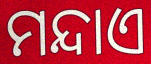
ମନ୍ଦାଏ